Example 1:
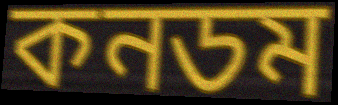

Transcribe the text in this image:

কনডম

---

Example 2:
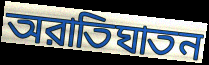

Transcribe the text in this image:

অরাতিঘাতন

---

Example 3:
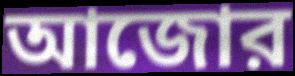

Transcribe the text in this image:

আজোর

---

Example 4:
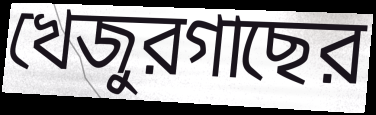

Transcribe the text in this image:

খেজুরগাছের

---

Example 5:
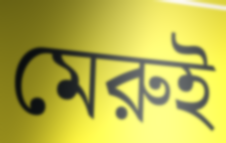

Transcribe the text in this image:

মেরুই